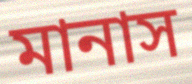
মানাস